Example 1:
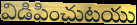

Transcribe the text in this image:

విడిపించుటయు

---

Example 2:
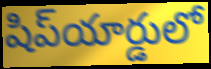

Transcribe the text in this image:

షిప్‌యార్డులో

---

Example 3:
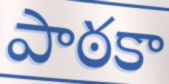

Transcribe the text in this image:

పాఠకా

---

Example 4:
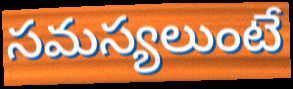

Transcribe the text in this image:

సమస్యలుంటే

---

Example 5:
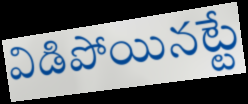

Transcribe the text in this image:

విడిపోయినట్టే